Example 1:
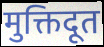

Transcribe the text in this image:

मुक्तिदूत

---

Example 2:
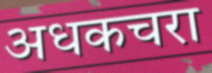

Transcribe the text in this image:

अधकचरा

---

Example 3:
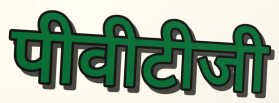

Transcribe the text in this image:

पीवीटीजी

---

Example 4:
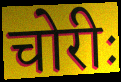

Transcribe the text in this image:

चोरीः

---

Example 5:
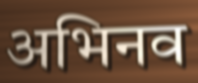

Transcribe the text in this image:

अभिनव